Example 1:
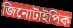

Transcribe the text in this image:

জিনোটাইপিক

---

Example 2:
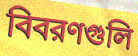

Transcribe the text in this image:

বিবরণগুলি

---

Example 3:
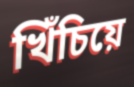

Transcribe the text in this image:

খিঁচিয়ে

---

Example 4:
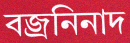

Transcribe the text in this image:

বজ্রনিনাদ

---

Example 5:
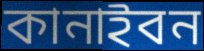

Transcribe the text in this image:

কানাইবন